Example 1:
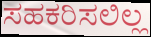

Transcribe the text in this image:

ಸಹಕರಿಸಲಿಲ್ಲ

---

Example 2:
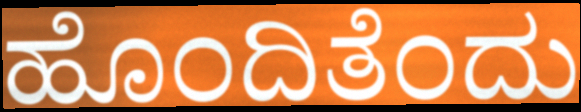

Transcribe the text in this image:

ಹೊಂದಿತೆಂದು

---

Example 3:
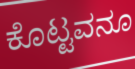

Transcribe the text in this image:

ಕೊಟ್ಟವನೂ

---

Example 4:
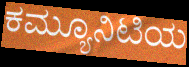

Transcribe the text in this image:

ಕಮ್ಯೂನಿಟಿಯ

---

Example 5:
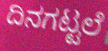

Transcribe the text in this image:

ದಿನಗಟ್ಟಲೆ